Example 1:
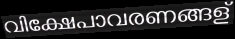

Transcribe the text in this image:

വിക്ഷേപാവരണങ്ങള്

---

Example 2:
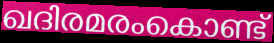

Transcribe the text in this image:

ഖദിരമരംകൊണ്ട്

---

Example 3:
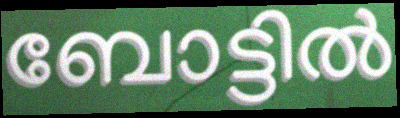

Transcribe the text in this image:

ബോട്ടിൽ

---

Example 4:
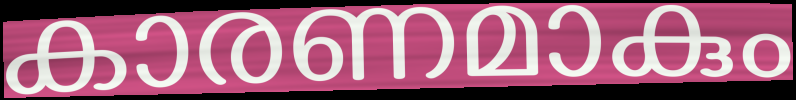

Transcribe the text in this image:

കാരണമാകും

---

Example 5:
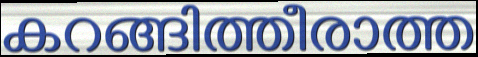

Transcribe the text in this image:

കറങ്ങിത്തീരാത്ത